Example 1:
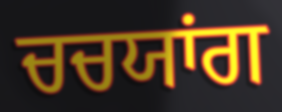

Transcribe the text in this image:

ਚਚਯਾਂਗ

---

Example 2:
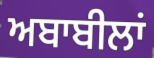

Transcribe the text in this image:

ਅਬਾਬੀਲਾਂ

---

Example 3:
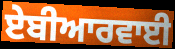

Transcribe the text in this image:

ਏਬੀਆਰਵਾਈ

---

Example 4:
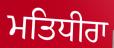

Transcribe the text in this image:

ਮਤਿਧੀਰਾ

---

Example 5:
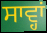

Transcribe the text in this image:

ਸਾਵ੍ਹਾਂ